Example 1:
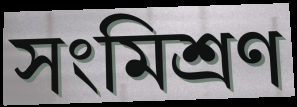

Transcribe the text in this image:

সংমিশ্ৰণ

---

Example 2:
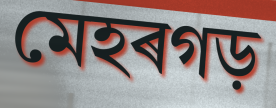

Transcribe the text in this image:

মেহৰগড়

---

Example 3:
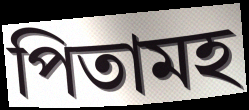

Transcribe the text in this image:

পিতামহ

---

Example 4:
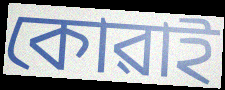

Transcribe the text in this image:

কোৱাই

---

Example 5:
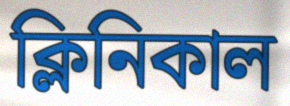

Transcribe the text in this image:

ক্লিনিকাল